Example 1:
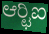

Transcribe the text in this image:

ಆರ್‍ಟಿಐ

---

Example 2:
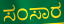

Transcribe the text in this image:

ಸಂಸಾರ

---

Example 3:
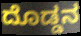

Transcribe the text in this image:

ದೊಡ್ಡನ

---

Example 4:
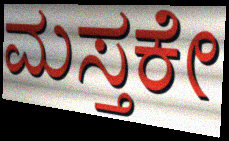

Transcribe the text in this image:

ಮಸ್ತಕೇ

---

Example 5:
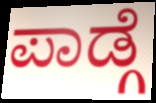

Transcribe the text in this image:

ಪಾಡ್ಗೆ